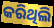
କରିଥିଲି